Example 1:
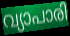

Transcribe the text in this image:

വ്യാപാരി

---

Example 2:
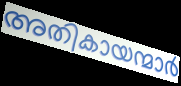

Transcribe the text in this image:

അതികായന്മാർ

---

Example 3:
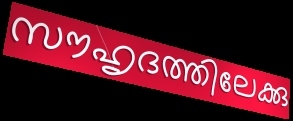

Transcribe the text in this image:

സൗഹൃദത്തിലേക്കു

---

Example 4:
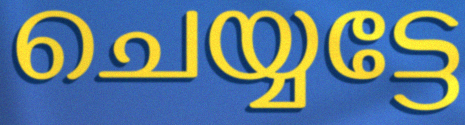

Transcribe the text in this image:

ചെയ്യട്ടേ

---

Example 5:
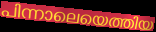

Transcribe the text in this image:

പിന്നാലെയെത്തിയ